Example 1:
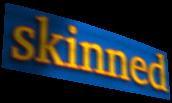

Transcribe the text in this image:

skinned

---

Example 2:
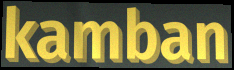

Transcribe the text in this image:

kamban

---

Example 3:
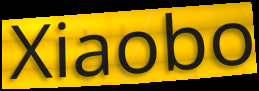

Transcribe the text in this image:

Xiaobo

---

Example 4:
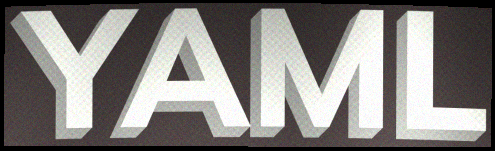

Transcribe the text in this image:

YAML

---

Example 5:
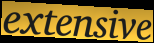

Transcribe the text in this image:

extensive